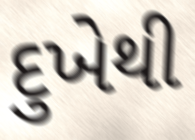
દુખેથી